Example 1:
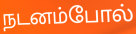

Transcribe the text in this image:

நடனம்போல்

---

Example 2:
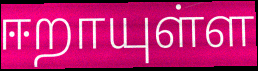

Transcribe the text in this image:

ஈறாயுள்ள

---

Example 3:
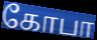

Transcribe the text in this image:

கோபா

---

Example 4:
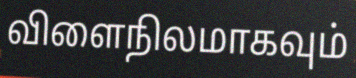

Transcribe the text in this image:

விளைநிலமாகவும்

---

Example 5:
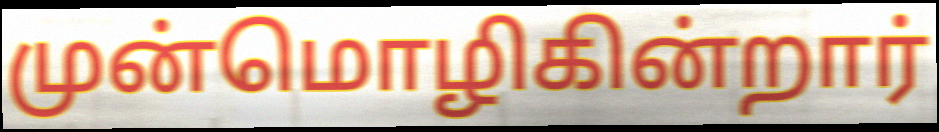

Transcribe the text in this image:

முன்மொழிகின்றார்